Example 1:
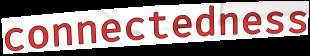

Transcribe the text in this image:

connectedness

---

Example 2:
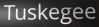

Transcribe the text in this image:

Tuskegee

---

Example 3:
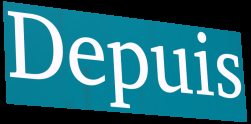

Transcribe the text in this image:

Depuis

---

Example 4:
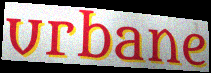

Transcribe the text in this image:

urbane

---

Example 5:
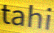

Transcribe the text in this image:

tahi